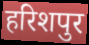
हरिशपुर